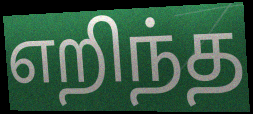
எறிந்த